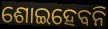
ଶୋଇହେବନି